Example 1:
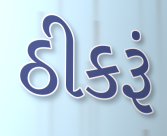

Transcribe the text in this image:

ઠીકરૂં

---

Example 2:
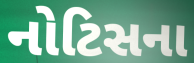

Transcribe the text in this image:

નોટિસના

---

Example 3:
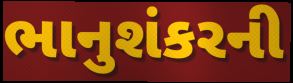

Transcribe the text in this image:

ભાનુશંકરની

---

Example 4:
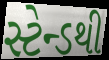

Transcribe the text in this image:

સ્ટેન્ડથી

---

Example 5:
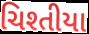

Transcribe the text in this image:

ચિશ્તીયા